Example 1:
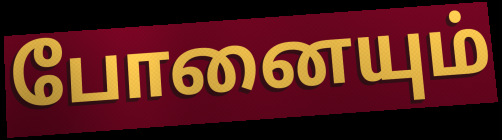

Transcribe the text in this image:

போனையும்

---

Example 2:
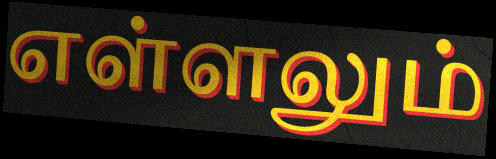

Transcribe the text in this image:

எள்ளலும்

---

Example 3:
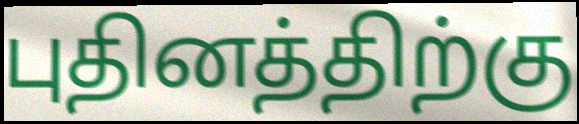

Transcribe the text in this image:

புதினத்திற்கு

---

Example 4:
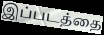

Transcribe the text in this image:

இப்படத்தை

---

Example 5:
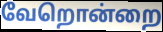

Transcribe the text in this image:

வேறொன்றை